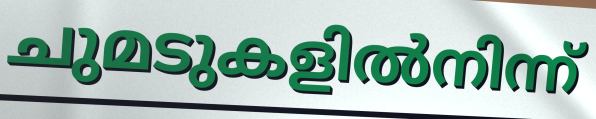
ചുമടുകളിൽനിന്ന്